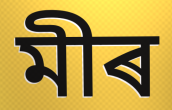
মীৰ